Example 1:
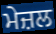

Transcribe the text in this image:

ਮੇਜ਼ਲ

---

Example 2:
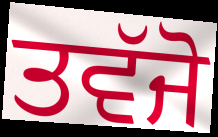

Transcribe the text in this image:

ਤਵੱਜੋ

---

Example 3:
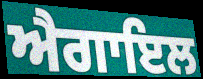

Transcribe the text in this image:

ਐਗਾਇਲ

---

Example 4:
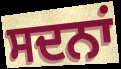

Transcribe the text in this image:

ਸਦਨਾਂ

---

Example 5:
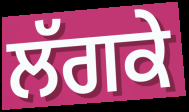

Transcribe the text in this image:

ਲੱਗਕੇ